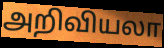
அறிவியலா